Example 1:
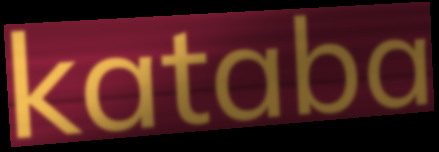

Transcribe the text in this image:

kataba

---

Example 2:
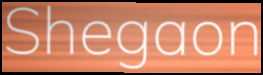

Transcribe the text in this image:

Shegaon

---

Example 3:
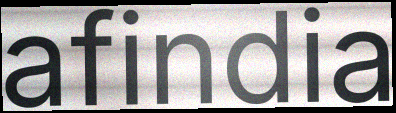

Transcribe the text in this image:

afindia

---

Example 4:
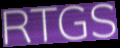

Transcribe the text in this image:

RTGS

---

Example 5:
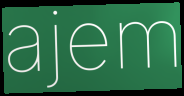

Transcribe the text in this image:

ajem